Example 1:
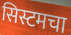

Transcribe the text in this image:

सिस्टमचा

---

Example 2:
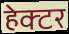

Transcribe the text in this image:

हेक्‍टर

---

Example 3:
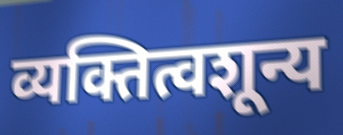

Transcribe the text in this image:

व्यक्तित्वशून्य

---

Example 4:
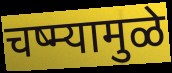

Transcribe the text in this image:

चष्म्यामुळे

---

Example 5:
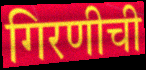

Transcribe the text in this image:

गिरणीची